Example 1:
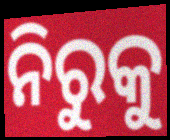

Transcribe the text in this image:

ନିରୁକୁ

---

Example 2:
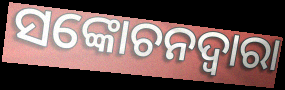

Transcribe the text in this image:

ସଙ୍କୋଚନଦ୍ୱାରା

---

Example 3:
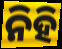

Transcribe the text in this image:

ନିହି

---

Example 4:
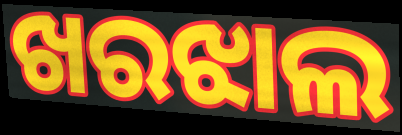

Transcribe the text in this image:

ଖରଝାଲ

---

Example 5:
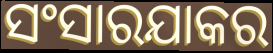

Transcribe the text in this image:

ସଂସାରଯାକର